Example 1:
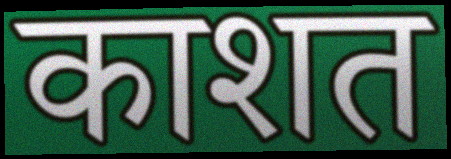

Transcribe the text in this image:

काशत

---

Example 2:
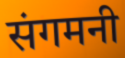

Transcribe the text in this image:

संगमनी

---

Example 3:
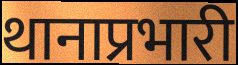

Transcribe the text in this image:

थानाप्रभारी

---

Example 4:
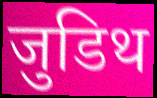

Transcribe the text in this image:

जुडिथ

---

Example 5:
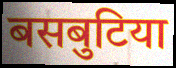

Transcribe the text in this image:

बसबुटिया